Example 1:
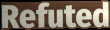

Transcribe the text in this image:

Refuted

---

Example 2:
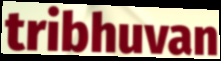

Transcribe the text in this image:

tribhuvan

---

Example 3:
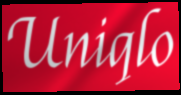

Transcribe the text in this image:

Uniqlo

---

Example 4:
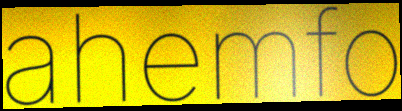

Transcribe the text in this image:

ahemfo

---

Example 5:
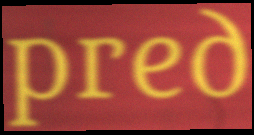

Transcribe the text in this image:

pred